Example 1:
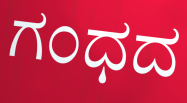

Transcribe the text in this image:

ಗಂಧದ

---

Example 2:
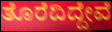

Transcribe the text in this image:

ತೊರೆದಿದ್ದೇವೆ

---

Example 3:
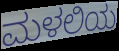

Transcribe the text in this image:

ಮಳಲಿಯ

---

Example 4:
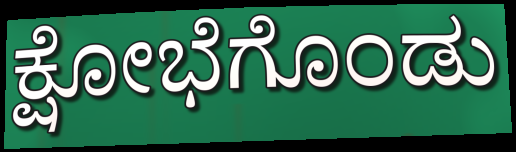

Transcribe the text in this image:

ಕ್ಷೋಭೆಗೊಂಡು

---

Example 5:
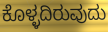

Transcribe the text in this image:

ಕೊಳ್ಳದಿರುವುದು